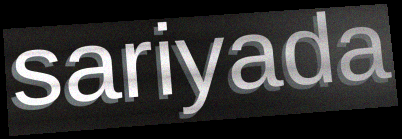
sariyada